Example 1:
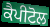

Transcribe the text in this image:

ਕੈਪੀਟੋਲ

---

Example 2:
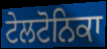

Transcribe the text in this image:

ਟੇਲਟੋਨਿਕਾ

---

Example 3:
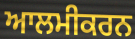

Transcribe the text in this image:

ਆਲਮੀਕਰਨ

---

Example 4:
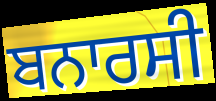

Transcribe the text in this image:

ਬਨਾਰਸੀ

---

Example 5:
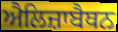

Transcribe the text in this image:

ਐਲਿਜ਼ਾਬੈਥਨ